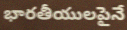
భారతీయులపైనే